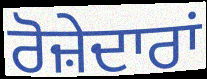
ਰੋਜ਼ੇਦਾਰਾਂ